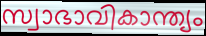
സ്വാഭാവികാന്ത്യം